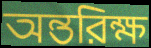
অন্তরিক্ষ